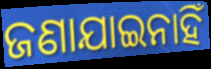
ଜଣାଯାଇନାହିଁ